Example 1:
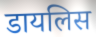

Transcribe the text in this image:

डायलिस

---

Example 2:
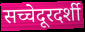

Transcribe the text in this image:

सच्चेदूरदर्शी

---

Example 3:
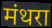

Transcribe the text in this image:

मंथरा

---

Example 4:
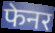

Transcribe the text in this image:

फेनर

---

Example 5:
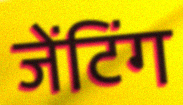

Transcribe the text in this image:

जेंटिंग